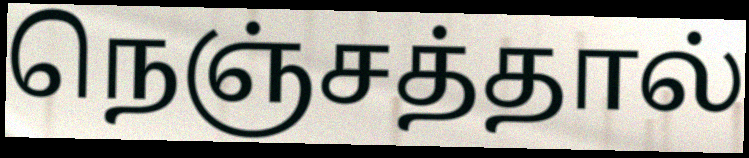
நெஞ்சத்தால்